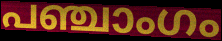
പഞ്ചാംഗം